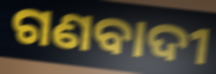
ଗଣବାଦୀ